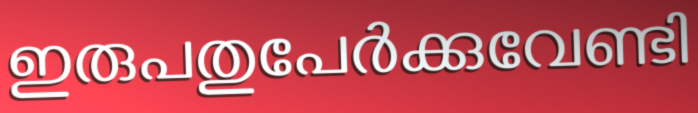
ഇരുപതുപേർക്കുവേണ്ടി